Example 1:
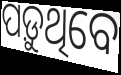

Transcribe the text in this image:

ପଡ଼ୁଥିବେ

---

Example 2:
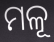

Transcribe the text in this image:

ମଳୂ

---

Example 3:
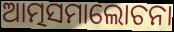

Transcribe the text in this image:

ଆତ୍ମସମାଲୋଚନା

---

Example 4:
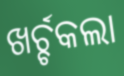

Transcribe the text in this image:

ଖର୍ଚ୍ଚକଲା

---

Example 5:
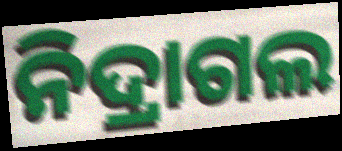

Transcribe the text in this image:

ନିଦ୍ରାଗଲ